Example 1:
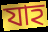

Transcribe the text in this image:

যাহ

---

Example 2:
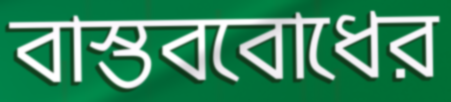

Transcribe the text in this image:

বাস্তববোধের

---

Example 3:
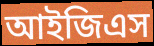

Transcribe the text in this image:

আইজিএস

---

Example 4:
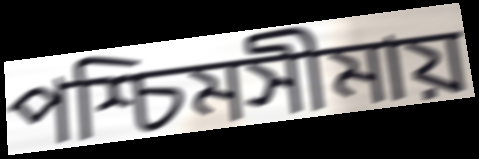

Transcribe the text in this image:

পশ্চিমসীমায়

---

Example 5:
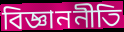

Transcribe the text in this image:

বিজ্ঞাননীতি